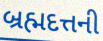
બ્રહ્મદત્તની